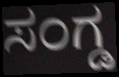
ಸಂಗ್ಡ